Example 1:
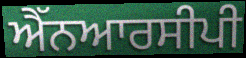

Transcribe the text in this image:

ਐੱਨਆਰਸੀਪੀ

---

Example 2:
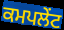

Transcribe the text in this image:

ਕਮਪਲੇਂਟ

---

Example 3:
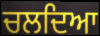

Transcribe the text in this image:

ਚਲਦਿਆ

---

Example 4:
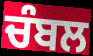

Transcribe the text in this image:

ਚੰਬਲ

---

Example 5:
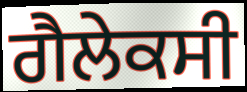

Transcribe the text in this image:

ਗੈਲੇਕਸੀ